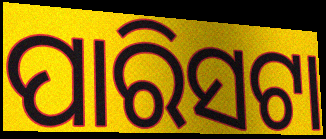
ପାରିସଟା